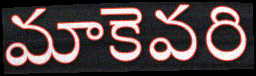
మాకెవరి